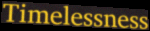
Timelessness